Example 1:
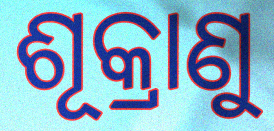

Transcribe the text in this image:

ଶୂକ୍ରାଣୁ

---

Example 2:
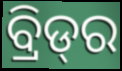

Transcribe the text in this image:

ବ୍ରିଡ୍‌ର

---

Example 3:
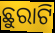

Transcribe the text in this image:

ଛୁରାଟି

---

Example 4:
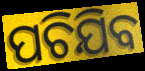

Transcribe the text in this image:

ପଚିଯିବ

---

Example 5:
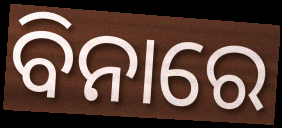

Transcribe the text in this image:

ବିନାରେ